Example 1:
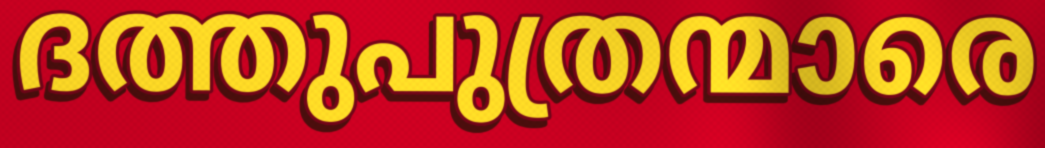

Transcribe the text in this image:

ദത്തുപുത്രന്മാരെ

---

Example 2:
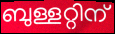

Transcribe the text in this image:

ബുള്ളറ്റിന്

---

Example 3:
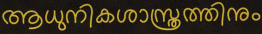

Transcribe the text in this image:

ആധുനികശാസ്ത്രത്തിനും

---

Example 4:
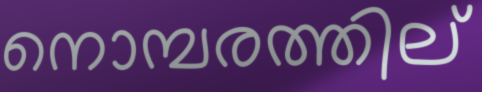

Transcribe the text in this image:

നൊമ്പരത്തില്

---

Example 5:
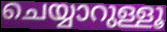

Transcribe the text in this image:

ചെയ്യാറുള്ളൂ